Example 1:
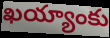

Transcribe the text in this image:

ఖయ్యాంకు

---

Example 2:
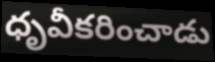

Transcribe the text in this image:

ధృవీకరించాడు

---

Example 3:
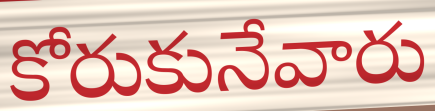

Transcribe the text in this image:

కోరుకునేవారు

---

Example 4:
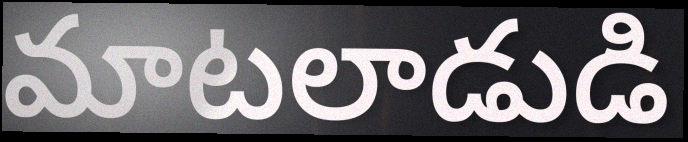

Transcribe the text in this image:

మాటలాడుడి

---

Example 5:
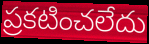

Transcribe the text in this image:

ప్రకటించలేదు